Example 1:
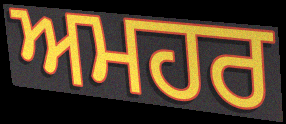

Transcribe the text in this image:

ਅਮਹਰ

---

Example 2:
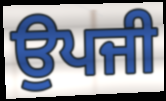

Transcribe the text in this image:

ਉਪਜੀ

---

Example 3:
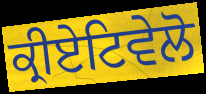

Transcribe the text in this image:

ਕ੍ਰੀਏਟਿਵੇਲੋ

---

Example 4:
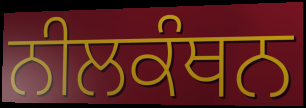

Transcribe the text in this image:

ਨੀਲਕੰਥਨ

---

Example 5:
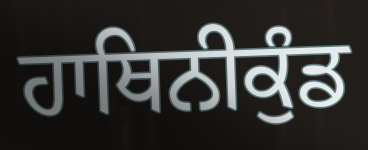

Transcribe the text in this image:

ਹਾਥਿਨੀਕੁੰਡ